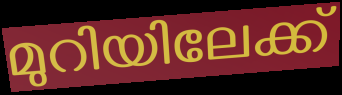
മുറിയിലേക്ക്